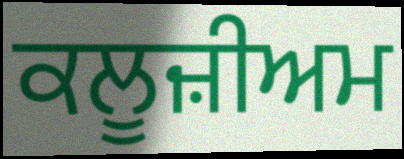
ਕਲੂਜ਼ੀਅਮ